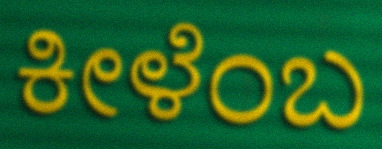
ಕೀಳೆಂಬ